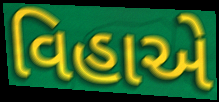
વિહાએ